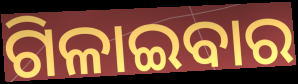
ଗିଳାଇବାର